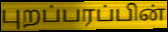
புறப்பரப்பின்